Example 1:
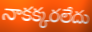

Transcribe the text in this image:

నాకక్కరలేదు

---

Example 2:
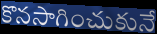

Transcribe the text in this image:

కొనసాగించుకునే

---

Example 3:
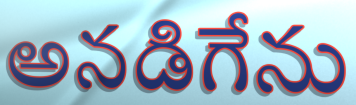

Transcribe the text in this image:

అనడిగేను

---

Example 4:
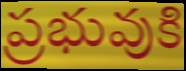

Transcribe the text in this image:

ప్రభువుకి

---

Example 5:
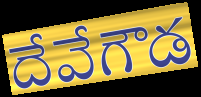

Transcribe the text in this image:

దేవేగౌడ